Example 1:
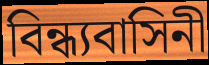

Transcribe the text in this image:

বিন্ধ্যবাসিনী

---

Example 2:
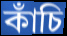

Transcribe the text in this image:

কাঁচি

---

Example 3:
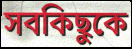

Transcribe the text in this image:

সবকিছুকে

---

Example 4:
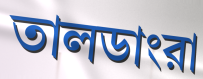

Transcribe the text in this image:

তালডাংরা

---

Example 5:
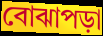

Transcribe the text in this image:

বোঝাপড়া